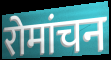
रोमांचन